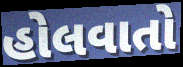
હોલવાતો